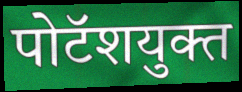
पोटॅशयुक्त